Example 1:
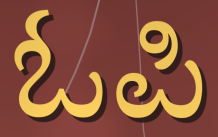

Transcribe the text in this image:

ಓಪಿ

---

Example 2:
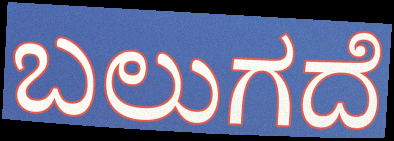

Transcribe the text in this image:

ಬಲುಗದೆ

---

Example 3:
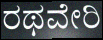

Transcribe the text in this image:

ರಥವೇರಿ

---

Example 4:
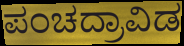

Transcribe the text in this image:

ಪಂಚದ್ರಾವಿಡ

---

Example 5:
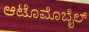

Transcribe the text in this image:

ಆಟೊಮೊಬೈಲ್